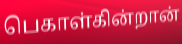
பெகாள்கின்றான்